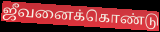
ஜீவனைக்கொண்டு